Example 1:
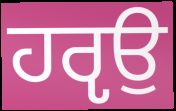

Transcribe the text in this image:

ਹਰੵਉ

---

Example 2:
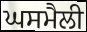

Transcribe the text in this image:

ਘਸਮੈਲੀ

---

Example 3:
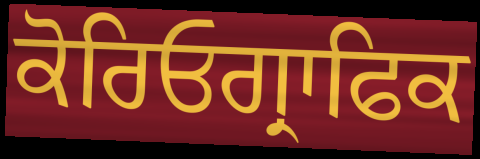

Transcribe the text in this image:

ਕੋਰਿਓਗ੍ਰਾਫਿਕ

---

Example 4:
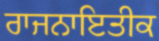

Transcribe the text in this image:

ਰਾਜਨਾਇਤੀਕ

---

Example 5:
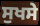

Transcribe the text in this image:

ਸੁਖਸੇ